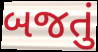
બજતું